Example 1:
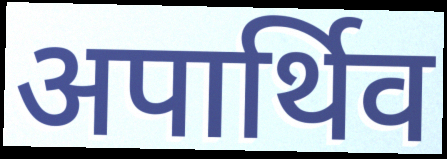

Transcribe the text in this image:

अपार्थिव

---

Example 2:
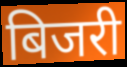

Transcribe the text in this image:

बिजरी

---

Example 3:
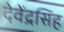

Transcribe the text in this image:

देवेंद्रसिंह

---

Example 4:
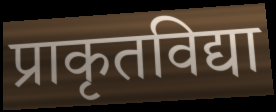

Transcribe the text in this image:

प्राकृतविद्या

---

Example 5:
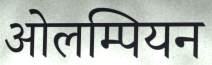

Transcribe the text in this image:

ओलम्पियन